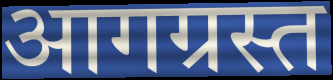
आगग्रस्त